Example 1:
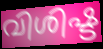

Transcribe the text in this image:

വിശിഷ്ട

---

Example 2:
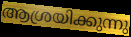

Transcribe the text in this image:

ആശ്രയിക്കുന്നു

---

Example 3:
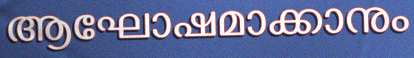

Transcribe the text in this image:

ആഘോഷമാക്കാനും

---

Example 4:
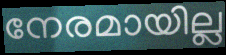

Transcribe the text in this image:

നേരമായില്ല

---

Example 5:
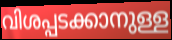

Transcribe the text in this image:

വിശപ്പടക്കാനുള്ള